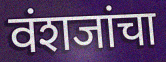
वंशजांचा